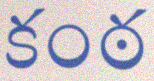
కంఠ